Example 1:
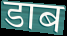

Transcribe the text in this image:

डाब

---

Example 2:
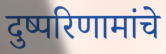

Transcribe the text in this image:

दुष्परिणामांचे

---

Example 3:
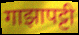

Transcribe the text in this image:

गाझापट्टी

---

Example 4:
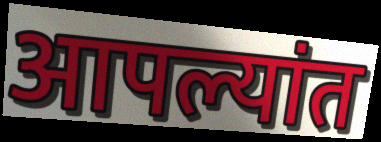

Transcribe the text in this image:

आपल्यांत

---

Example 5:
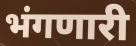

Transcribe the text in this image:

भंगणारी